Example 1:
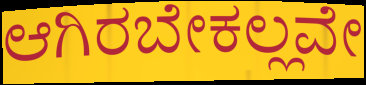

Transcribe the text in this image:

ಆಗಿರಬೇಕಲ್ಲವೇ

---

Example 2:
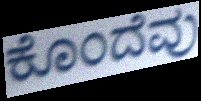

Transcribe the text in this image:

ಕೊಂದೆವು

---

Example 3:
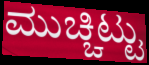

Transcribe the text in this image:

ಮುಚ್ಚಿಟ್ಟು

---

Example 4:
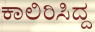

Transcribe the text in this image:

ಕಾಲಿರಿಸಿದ್ದ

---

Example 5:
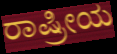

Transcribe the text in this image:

ರಾಷ್ರೀಯ